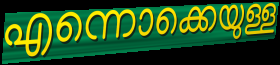
എന്നൊക്കെയുള്ള